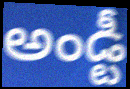
అండ్టీ